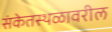
संकेतस्थळावरील